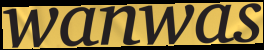
wanwas